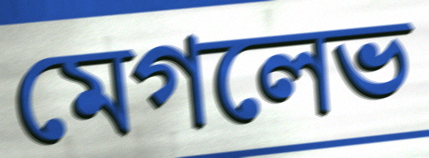
মেগলেভ